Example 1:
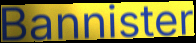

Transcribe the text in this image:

Bannister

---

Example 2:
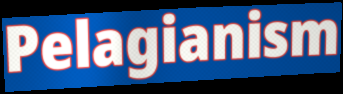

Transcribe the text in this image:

Pelagianism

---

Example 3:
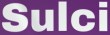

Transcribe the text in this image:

Sulci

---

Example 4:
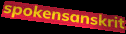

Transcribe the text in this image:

spokensanskrit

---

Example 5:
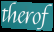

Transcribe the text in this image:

therof